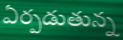
ఏర్పడుతున్న